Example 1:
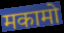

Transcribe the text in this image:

मकामो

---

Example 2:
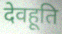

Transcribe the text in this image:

देवहूति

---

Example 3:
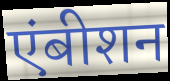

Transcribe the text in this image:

एंबीशन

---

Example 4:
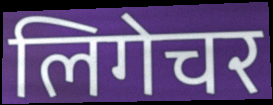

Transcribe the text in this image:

लिगेचर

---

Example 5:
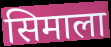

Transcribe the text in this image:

सिमाला